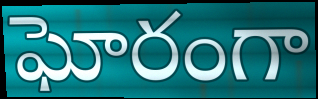
ఘోరంగా